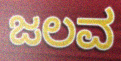
ಜಲವ